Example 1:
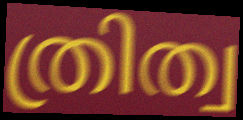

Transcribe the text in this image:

ത്രിത്വ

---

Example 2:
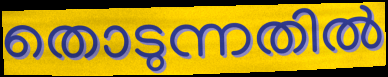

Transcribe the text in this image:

തൊടുന്നതിൽ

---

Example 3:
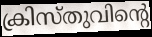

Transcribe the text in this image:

ക്രിസ്തുവിന്റെ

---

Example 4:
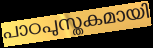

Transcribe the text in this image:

പാഠപുസ്തകമായി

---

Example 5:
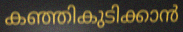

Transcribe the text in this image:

കഞ്ഞികുടിക്കാൻ